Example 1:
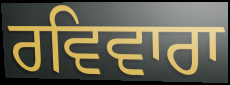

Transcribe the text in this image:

ਰਵਿਵਾਰਾ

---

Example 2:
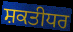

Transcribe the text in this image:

ਸ਼ਕਤੀਧਰ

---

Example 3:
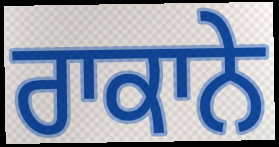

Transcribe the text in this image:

ਰਾਕਾਨੇ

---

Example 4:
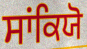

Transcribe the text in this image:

ਸਾਂਕਿਯੋ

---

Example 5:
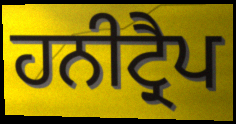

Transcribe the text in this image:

ਹਨੀਟ੍ਰੈਪ